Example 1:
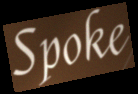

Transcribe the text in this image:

Spoke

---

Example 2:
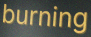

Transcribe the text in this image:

burning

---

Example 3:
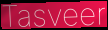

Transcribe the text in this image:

Tasveer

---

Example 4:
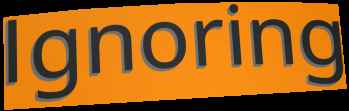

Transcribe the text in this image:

Ignoring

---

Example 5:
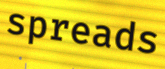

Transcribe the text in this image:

spreads